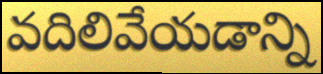
వదిలివేయడాన్ని